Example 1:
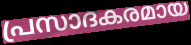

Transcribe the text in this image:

പ്രസാദകരമായ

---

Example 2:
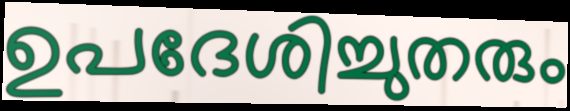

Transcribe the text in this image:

ഉപദേശിച്ചുതരും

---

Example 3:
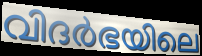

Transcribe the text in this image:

വിദർഭയിലെ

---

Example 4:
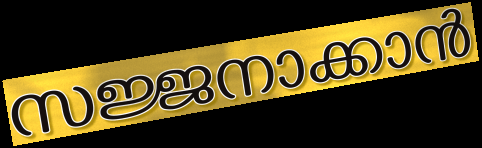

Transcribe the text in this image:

സജ്ജനാക്കാൻ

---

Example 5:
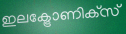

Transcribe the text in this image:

ഇലക്ട്രോണിക്‌സ്